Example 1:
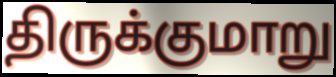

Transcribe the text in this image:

திருக்குமாறு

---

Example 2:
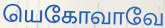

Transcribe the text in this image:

யெகோவாவே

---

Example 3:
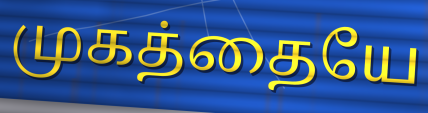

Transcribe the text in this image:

முகத்தையே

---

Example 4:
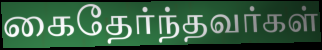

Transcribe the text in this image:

கைதேர்ந்தவர்கள்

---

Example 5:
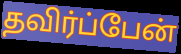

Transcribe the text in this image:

தவிர்ப்பேன்